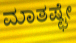
ಮಾತಷ್ಟೇ